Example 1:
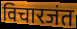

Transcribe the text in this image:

विचारजंत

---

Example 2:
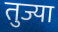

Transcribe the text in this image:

तुज्या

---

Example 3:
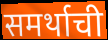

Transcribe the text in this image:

समर्थाची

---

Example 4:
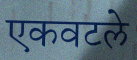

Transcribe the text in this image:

एकवटले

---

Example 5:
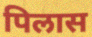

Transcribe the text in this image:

पिलास